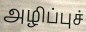
அழிப்புச்